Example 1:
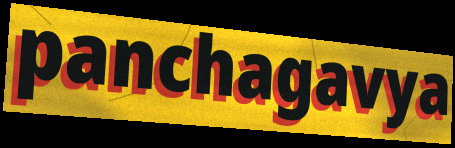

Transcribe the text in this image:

panchagavya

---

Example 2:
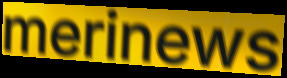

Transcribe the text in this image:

merinews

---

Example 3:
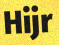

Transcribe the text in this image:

Hijr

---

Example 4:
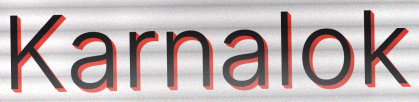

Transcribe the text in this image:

Karnalok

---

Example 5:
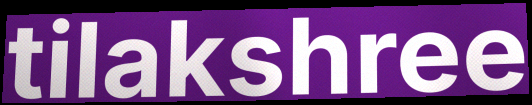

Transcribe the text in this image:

tilakshree